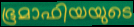
ഭൂമാഫിയയുടെ